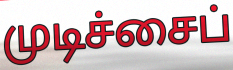
முடிச்சைப்